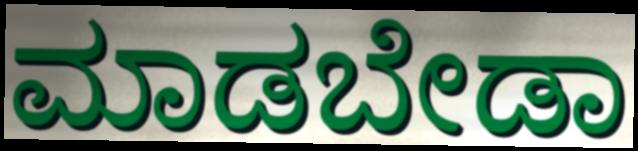
ಮಾಡಬೇಡಾ